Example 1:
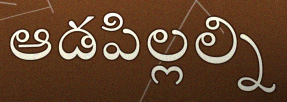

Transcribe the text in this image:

ఆడపిల్లల్ని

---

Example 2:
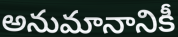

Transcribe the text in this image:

అనుమానానికీ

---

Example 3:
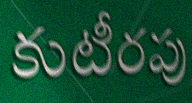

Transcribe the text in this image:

కుటీరపు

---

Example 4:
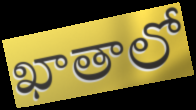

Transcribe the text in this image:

ఖాతాలో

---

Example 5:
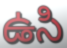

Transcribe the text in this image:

ఉసి